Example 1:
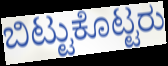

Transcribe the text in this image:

ಬಿಟ್ಟುಕೊಟ್ಟರು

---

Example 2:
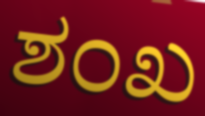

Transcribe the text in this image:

ಶಂಖ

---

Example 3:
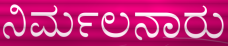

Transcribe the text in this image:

ನಿರ್ಮಲನಾರು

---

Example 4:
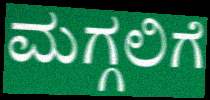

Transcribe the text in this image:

ಮಗ್ಗಲಿಗೆ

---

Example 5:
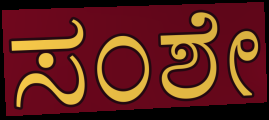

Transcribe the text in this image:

ಸಂಶೇ